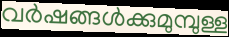
വർഷങ്ങൾക്കുമുമ്പുള്ള